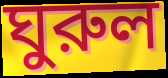
ঘুরুল